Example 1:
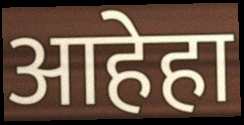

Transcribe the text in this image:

आहेहा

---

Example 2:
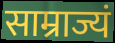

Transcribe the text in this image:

साम्राज्यं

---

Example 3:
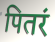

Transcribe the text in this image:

पितरं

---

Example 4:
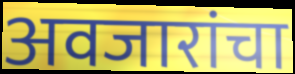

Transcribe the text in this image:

अवजारांचा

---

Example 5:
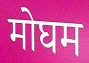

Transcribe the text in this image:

मोघम